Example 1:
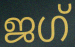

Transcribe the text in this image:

ജഗ്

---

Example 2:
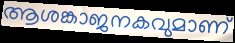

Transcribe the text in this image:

ആശങ്കാജനകവുമാണ്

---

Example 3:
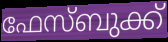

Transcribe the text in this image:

ഫേസ്ബുക്ക്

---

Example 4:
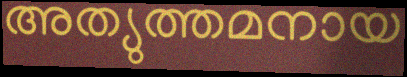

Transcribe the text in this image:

അത്യുത്തമനായ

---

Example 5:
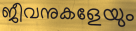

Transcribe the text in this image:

ജീവനുകളേയും